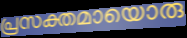
പ്രസക്തമായൊരു